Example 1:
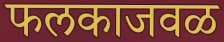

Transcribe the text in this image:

फलकाजवळ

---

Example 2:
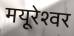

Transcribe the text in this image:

मयूरेश्वर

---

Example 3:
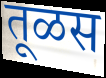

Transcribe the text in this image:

तूळस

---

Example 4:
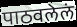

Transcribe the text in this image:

पाठवलेलं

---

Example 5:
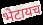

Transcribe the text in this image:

भेटायच